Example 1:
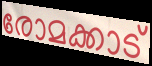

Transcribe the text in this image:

രോമക്കാട്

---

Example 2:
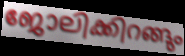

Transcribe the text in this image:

ജോലിക്കിറങ്ങും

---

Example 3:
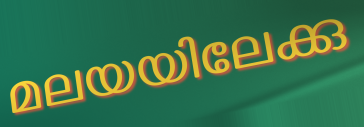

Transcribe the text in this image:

മലയയിലേക്കു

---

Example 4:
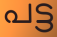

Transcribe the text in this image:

പട്ട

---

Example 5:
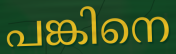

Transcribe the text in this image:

പങ്കിനെ